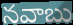
నవాబు